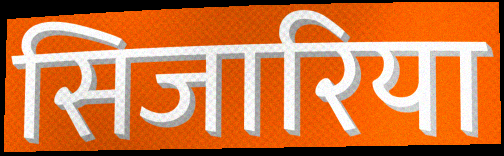
सिजारिया